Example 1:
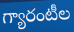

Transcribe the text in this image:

గ్యారంటీల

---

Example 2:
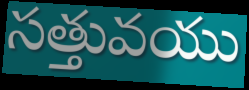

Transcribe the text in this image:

సత్తువయు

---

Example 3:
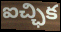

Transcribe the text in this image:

ఐచ్ఛిక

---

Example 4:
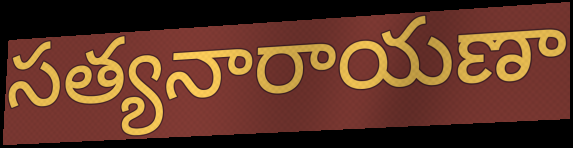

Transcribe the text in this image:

సత్యనారాయణా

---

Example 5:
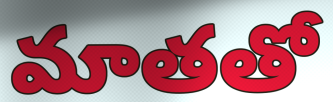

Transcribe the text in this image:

మాతతో